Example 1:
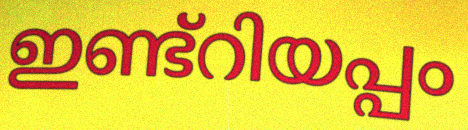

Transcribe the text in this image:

ഇണ്ട്റിയപ്പം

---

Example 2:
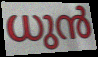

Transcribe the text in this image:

ധുൻ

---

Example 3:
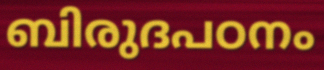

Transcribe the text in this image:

ബിരുദപഠനം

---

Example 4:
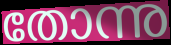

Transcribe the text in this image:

തോന്നു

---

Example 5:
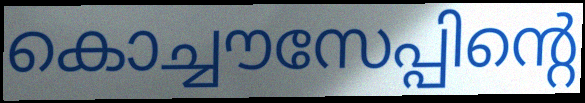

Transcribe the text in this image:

കൊച്ചൗസേപ്പിന്റെ